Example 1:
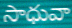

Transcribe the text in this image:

సాధువా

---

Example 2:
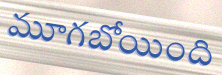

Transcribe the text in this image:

మూగబోయింది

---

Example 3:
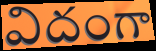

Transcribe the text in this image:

విదంగా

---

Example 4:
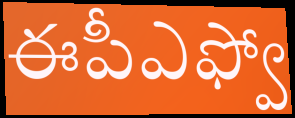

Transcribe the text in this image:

ఈపీఎఫ్వో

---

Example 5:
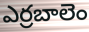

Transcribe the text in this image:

ఎర్రబాలెం